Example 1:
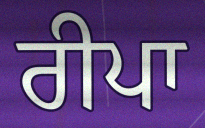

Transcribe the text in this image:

ਰੀਪਾ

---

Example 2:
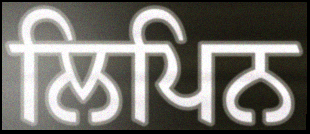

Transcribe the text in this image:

ਲਿਪਿਨ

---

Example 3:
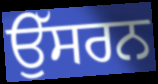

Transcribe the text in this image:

ਉੱਸਰਨ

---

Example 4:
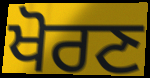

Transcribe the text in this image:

ਖੋਰਣ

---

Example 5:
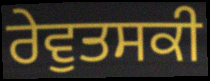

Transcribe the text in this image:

ਰੇਵੁਤਸਕੀ